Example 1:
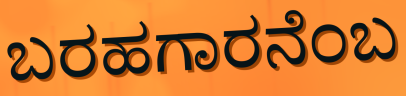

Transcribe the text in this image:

ಬರಹಗಾರನೆಂಬ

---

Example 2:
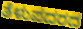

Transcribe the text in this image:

ತೆಳುಪದರದ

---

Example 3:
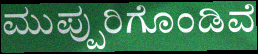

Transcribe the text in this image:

ಮುಪ್ಪುರಿಗೊಂಡಿವೆ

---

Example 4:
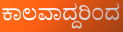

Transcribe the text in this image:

ಕಾಲವಾದ್ದರಿಂದ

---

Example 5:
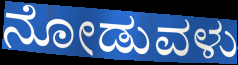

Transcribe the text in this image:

ನೋಡುವಳು